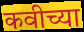
कवीच्या